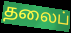
தலைப்